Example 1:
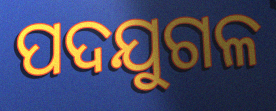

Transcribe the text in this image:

ପଦଯୁଗଳ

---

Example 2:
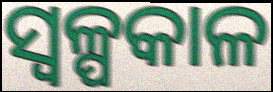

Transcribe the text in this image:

ସ୍ୱଳ୍ପକାଳ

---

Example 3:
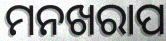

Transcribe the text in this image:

ମନଖରାପ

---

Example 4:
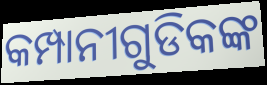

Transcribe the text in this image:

କମ୍ପାନୀଗୁଡିକଙ୍କ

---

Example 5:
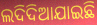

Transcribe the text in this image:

ଲଦିଦିଆଯାଇଛି